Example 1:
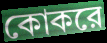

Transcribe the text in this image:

কোকরে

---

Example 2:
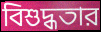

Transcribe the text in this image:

বিশুদ্ধতার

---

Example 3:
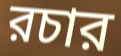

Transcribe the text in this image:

রচার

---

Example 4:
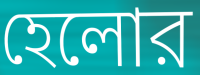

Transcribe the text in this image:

হেলোর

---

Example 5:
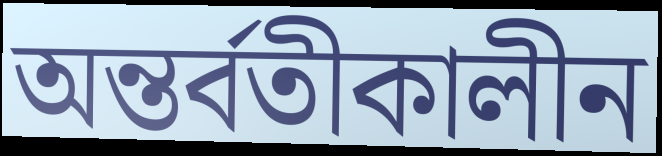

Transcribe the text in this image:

অন্তর্বতীকালীন